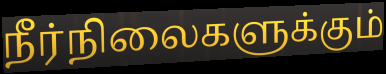
நீர்நிலைகளுக்கும்